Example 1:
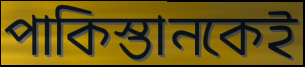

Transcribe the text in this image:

পাকিস্তানকেই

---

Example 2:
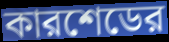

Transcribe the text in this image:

কারশেডের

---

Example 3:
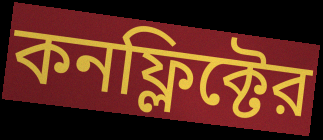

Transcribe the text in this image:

কনফ্লিক্টের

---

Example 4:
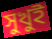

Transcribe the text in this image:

সুখুই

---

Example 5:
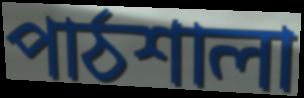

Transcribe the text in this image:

পাঠশালা